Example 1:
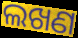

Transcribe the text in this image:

ଲଖଣ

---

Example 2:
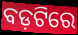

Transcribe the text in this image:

ବଡ଼ଟିରେ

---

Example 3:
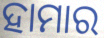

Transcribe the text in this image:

ହାମାର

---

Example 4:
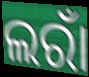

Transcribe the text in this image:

ଲରାଁ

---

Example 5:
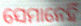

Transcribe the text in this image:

ସେମାନେହିଁ